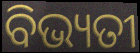
ବିଭ୍ୟତୀ